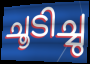
ചൂടിച്ചു